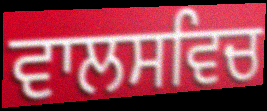
ਵਾਲਸਵਿਚ